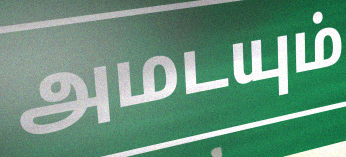
அமடயும்